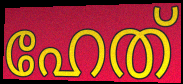
ഹേത്